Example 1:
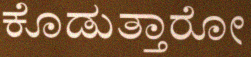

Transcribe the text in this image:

ಕೊಡುತ್ತಾರೋ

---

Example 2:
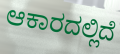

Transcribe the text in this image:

ಆಕಾರದಲ್ಲಿದೆ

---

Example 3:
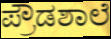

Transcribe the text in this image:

ಪ್ರೌಡಶಾಲೆ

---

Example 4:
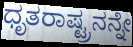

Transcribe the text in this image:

ಧೃತರಾಷ್ಟ್ರನನ್ನೇ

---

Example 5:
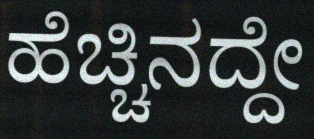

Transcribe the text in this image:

ಹೆಚ್ಚಿನದ್ದೇ